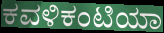
ಕವಳಿಕಂಟಿಯಾ